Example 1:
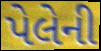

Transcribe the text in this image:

પેલેની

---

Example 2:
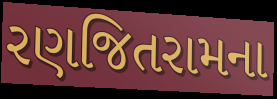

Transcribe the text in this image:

રણજિતરામના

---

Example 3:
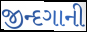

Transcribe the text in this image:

જીન્દગાની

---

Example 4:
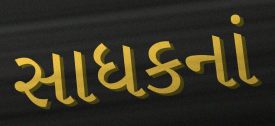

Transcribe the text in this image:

સાધકનાં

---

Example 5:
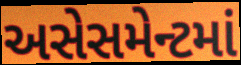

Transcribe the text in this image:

અસેસમેન્ટમાં